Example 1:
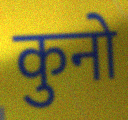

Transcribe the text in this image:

कुनो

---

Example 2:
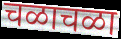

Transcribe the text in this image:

चळाचळा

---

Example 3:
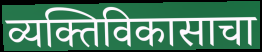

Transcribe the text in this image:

व्यक्तिविकासाचा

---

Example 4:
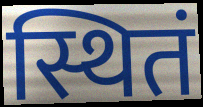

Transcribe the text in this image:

स्थितं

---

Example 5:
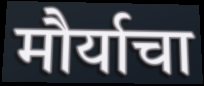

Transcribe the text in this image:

मौर्याचा